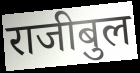
राजीबुल